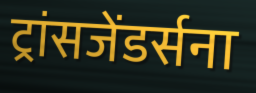
ट्रांसजेंडर्सना